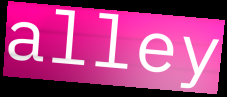
alley